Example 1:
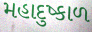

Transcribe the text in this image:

મહાદુષ્કાળ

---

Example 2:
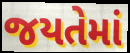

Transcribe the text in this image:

જયતેમાં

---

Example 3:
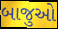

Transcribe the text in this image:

બાજુઓ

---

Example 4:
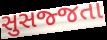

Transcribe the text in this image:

સુસજ્જતા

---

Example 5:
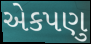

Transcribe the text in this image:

એકપણુ